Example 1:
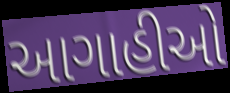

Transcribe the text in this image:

આગાહીઓ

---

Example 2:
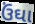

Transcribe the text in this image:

ઉંઘા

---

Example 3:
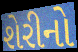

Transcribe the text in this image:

શેરીનો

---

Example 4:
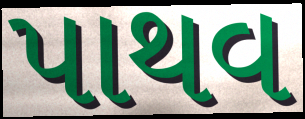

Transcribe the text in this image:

પાથવ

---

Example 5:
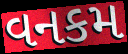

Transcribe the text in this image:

વનકમ